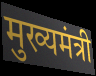
मुख्यमंत्री